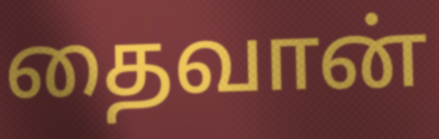
தைவான்